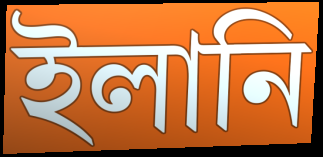
ইলানি